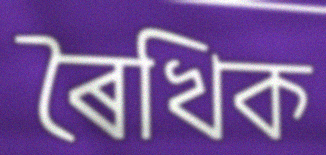
ৰৈখিক